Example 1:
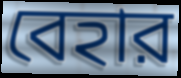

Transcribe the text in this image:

বেহার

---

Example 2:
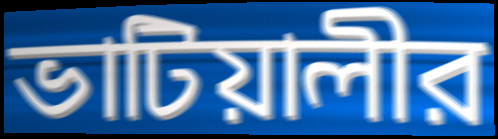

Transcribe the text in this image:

ভাটিয়ালীর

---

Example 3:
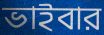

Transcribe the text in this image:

ভাইবার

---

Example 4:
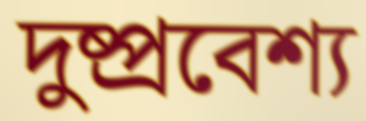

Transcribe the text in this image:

দুষ্প্রবেশ্য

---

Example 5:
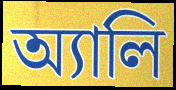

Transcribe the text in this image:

অ্যালি